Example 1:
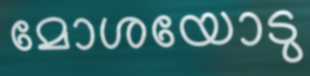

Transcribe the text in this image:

മോശയോടു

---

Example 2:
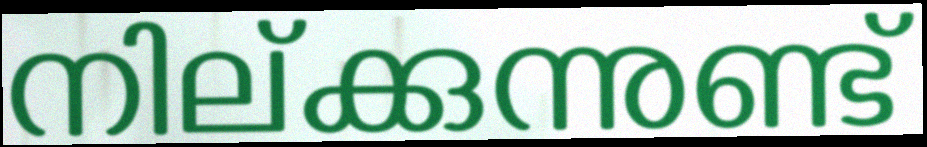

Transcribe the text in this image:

നില്ക്കുന്നുണ്ട്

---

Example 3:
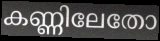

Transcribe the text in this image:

കണ്ണിലേതോ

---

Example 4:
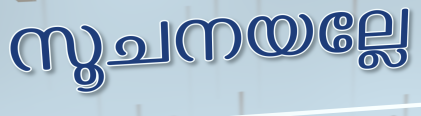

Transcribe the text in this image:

സൂചനയല്ലേ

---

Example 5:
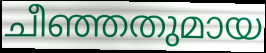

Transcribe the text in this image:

ചീഞ്ഞതുമായ